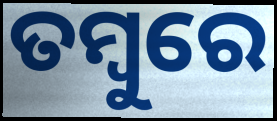
ତମ୍ବୁରେ